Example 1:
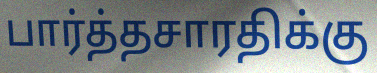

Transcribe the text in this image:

பார்த்தசாரதிக்கு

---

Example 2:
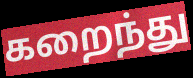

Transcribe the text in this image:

கறைந்து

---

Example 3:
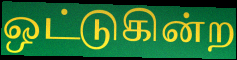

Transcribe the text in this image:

ஒட்டுகின்ற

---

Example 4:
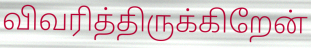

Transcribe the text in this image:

விவரித்திருக்கிறேன்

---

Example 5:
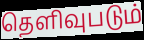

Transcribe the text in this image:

தெளிவுபடும்